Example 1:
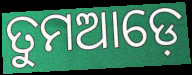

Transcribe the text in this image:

ତୁମଆଡ଼େ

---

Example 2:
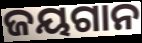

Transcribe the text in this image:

ଜୟଗାନ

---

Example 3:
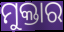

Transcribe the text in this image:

ମୁକ୍ତାର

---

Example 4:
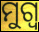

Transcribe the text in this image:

ମୁଗ୍ୱ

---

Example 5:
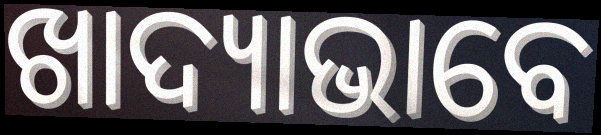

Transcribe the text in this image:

ଖାଦ୍ୟାଭାବେ